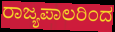
ರಾಜ್ಯಪಾಲರಿಂದ